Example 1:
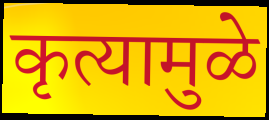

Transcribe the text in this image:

कृत्यामुळे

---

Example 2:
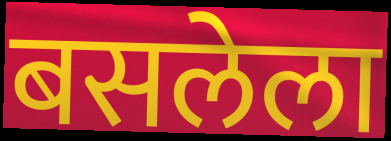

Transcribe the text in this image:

बसलेला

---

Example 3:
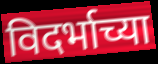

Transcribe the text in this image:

विदर्भाच्या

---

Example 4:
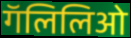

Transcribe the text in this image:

गॅलिलिओ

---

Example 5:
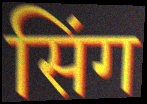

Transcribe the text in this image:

सिंग